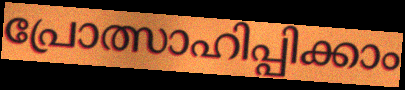
പ്രോത്സാഹിപ്പിക്കാം